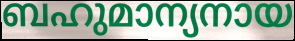
ബഹുമാന്യനായ